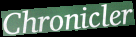
Chronicler